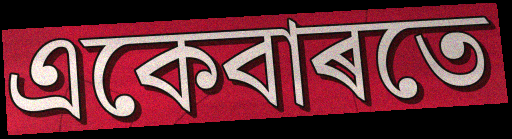
একেবাৰতে